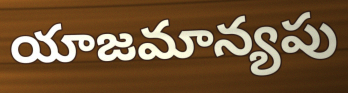
యాజమాన్యపు